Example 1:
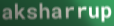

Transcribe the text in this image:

aksharrup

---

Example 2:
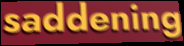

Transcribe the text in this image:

saddening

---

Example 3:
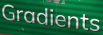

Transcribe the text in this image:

Gradients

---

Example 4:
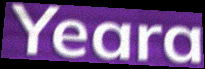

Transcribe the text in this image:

Yeara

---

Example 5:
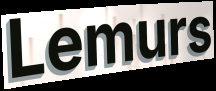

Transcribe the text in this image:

Lemurs